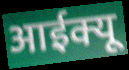
आईक्यू